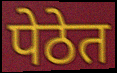
पेठेत